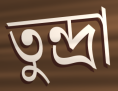
তুন্দ্রা